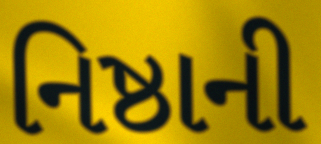
નિષ્ઠાની